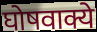
घोषवाक्ये